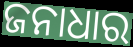
ଜନାଧାର